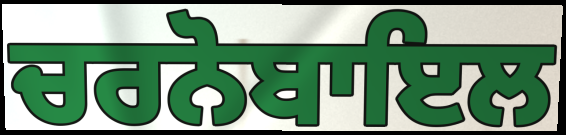
ਚਰਨੋਬਾਇਲ